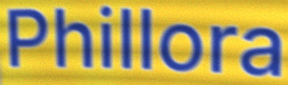
Phillora